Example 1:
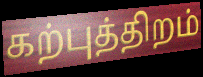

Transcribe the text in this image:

கற்புத்திறம்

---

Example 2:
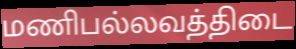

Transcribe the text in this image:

மணிபல்லவத்திடை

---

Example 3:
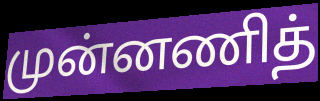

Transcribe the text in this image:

முன்னணித்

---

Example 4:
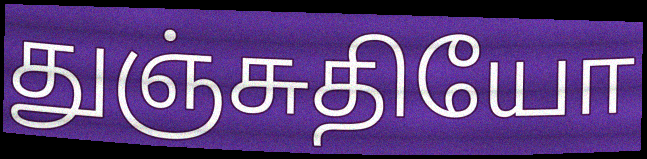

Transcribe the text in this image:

துஞ்சுதியோ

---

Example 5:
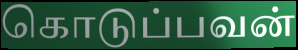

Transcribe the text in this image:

கொடுப்பவன்